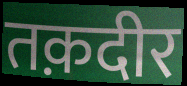
तक़दीर